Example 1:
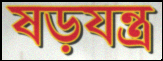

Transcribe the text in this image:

ষড়যন্ত্ৰ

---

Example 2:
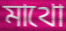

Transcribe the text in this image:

মাথো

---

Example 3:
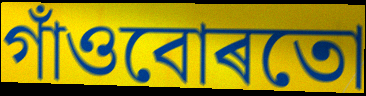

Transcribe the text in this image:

গাঁওবোৰতো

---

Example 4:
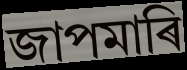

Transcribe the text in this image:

জাপমাৰি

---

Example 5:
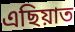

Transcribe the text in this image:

এছিয়াত